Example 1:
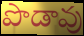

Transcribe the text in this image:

పొడావు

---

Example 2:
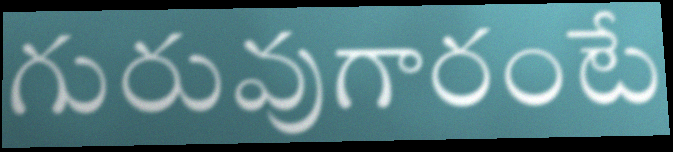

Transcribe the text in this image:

గురువుగారంటే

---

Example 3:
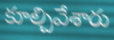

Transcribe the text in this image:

కూల్చివేశారు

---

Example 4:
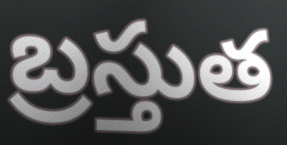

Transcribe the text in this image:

బ్రస్తుత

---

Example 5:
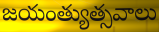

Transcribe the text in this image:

జయంత్యుత్సవాలు